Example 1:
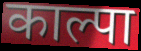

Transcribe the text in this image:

काल्पा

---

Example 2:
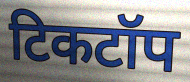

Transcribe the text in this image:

टिकटॉप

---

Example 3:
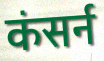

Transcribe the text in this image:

कंसर्न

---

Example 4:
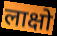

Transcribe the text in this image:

लाक्षो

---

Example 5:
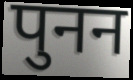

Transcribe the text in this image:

पुनन